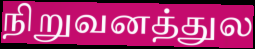
நிறுவனத்துல